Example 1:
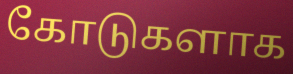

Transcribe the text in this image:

கோடுகளாக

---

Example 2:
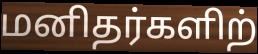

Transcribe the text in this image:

மனிதர்களிற்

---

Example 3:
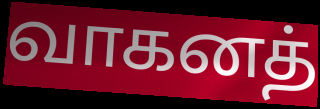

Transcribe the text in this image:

வாகனத்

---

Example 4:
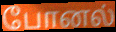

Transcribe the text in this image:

போனல்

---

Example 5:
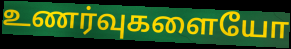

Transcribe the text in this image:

உணர்வுகளையோ